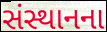
સંસ્થાનના